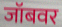
जॉबवर